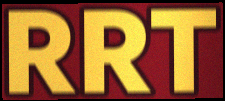
RRT